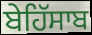
ਬੇਹਿੱਸਾਬ